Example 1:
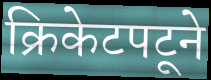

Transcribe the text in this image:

क्रिकेटपटूने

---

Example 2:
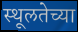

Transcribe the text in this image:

स्थूलतेच्या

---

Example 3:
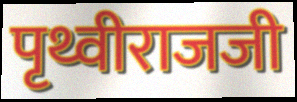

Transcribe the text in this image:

पृथ्वीराजजी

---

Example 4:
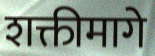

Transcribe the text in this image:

शक्तीमागे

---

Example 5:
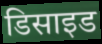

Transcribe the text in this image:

डिसाइड